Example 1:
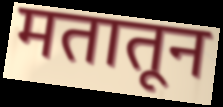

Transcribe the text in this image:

मतातून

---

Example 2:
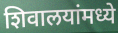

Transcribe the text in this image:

शिवालयांमध्ये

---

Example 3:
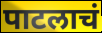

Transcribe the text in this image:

पाटलाचं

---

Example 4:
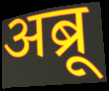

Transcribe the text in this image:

अब्रू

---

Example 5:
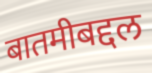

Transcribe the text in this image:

बातमीबद्दल